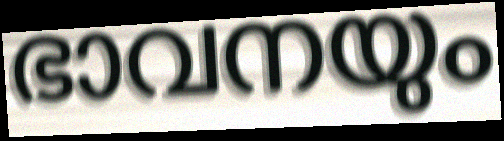
ഭാവനയും